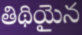
తిథియైన